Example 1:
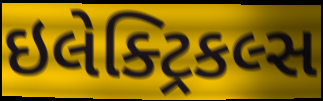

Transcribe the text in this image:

ઇલેક્ટ્રિકલ્સ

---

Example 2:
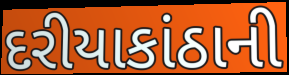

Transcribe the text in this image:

દરીયાકાંઠાની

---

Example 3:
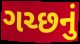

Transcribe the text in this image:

ગચ્છનું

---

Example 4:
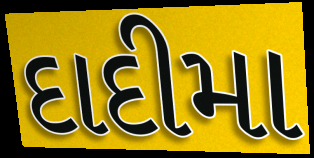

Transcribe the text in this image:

દાદીમા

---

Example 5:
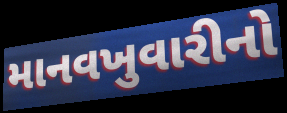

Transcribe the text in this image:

માનવખુવારીનો